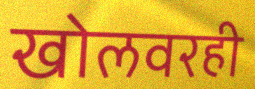
खोलवरही